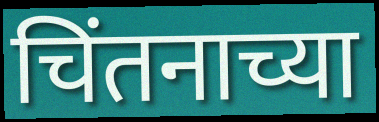
चिंतनाच्या